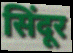
सिंदूर